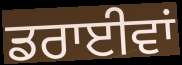
ਡਰਾਈਵਾਂ